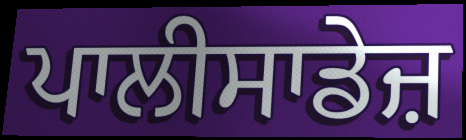
ਪਾਲੀਸਾਡੇਜ਼